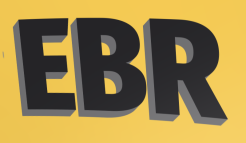
EBR